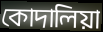
কোদালিয়া